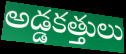
అడ్డకత్తులు